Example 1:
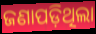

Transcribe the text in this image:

ଜଣାପଡ଼ିଥିଲା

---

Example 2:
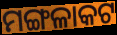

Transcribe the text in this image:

ମଙ୍ଗଳାକଟ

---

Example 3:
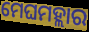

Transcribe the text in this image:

ମେଘମହ୍ଲାର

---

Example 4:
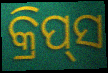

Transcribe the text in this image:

କ୍ରିପ୍‍ସ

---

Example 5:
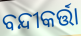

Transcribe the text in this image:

ବନ୍ଦୀକର୍ତ୍ତା